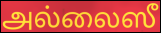
அல்லைஸீ